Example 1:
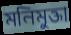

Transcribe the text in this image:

মনিমুক্তা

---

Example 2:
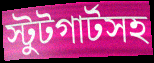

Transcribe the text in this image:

স্টুটগার্টসহ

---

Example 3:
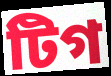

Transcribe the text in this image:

টিগ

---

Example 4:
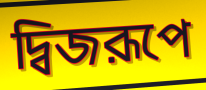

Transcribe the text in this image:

দ্বিজরূপে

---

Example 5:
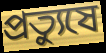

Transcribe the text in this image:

প্রত্যুষে